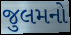
જુલમનો